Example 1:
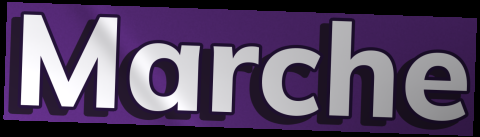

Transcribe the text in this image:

Marche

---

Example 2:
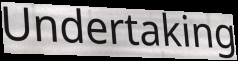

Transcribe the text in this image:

Undertaking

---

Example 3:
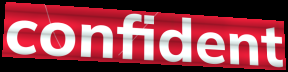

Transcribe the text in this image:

confident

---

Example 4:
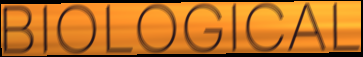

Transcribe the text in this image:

BIOLOGICAL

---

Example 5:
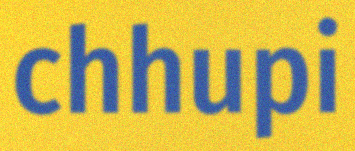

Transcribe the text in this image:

chhupi